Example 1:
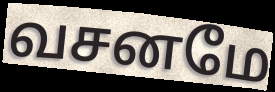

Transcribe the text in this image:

வசனமே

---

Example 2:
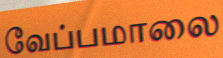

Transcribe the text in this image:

வேப்பமாலை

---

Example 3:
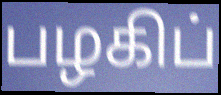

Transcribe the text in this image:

பழகிப்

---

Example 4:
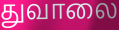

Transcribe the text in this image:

துவாலை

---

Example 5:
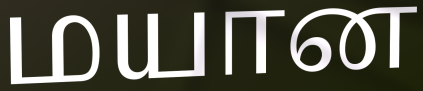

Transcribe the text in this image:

மயான